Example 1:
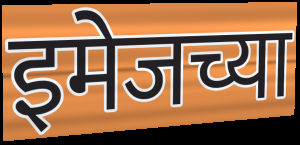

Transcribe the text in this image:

इमेजच्या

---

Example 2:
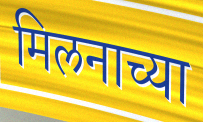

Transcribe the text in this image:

मिलनाच्या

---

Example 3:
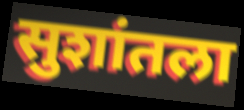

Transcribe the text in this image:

सुशांतला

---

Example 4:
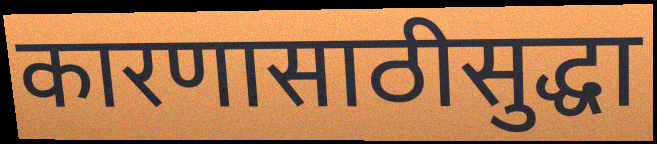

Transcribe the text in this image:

कारणासाठीसुद्धा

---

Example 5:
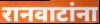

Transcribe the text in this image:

रानवाटांना